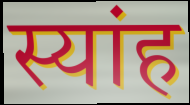
स्यांह